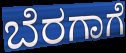
ಬೆರಗಾಗೆ